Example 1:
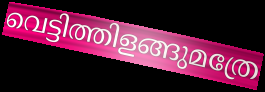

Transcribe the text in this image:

വെട്ടിത്തിളങ്ങുമത്രേ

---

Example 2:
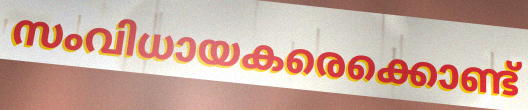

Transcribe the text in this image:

സംവിധായകരെക്കൊണ്ട്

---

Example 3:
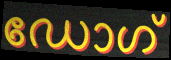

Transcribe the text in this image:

ഡോഗ്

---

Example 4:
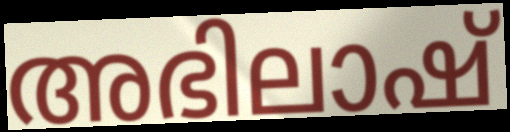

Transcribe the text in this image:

അഭിലാഷ്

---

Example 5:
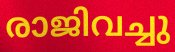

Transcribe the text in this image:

രാജിവച്ചു